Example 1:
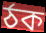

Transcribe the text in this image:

ঠক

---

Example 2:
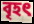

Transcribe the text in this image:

বৃহৎ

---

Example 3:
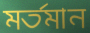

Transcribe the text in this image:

মর্তমান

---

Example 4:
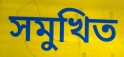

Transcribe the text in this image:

সমুখিত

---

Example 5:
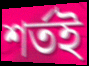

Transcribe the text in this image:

শর্তই